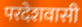
परदेशवासी